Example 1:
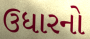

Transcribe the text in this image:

ઉધારનો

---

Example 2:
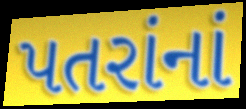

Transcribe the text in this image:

પતરાંનાં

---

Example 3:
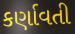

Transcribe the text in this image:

કર્ણાવતી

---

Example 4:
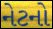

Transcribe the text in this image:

નેટનો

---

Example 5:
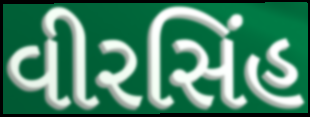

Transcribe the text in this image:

વીરસિંહ